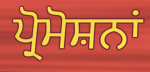
ਪ੍ਰੋਮੋਸ਼ਨਾਂ